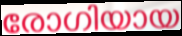
രോഗിയായ